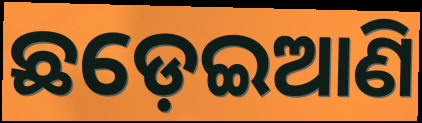
ଛଡ଼େଇଆଣି